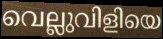
വെല്ലുവിളിയെ